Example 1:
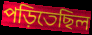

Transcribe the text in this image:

পড়িতেছিল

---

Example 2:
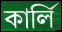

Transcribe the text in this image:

কার্লি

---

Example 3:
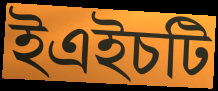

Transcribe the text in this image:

ইএইচটি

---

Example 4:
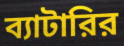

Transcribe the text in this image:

ব্যাটারির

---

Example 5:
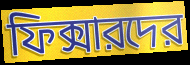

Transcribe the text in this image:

ফিক্সারদের